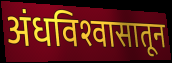
अंधविश्वासातून